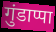
गुंडाप्पा